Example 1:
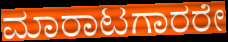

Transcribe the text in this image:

ಮಾರಾಟಗಾರರೇ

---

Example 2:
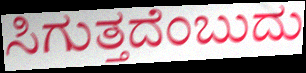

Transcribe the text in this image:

ಸಿಗುತ್ತದೆಂಬುದು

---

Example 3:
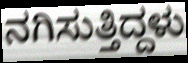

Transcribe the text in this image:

ನಗಿಸುತ್ತಿದ್ದಳು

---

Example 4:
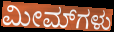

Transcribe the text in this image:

ಮೀಮ್‌ಗಳು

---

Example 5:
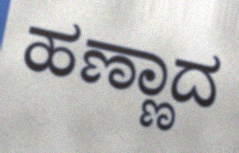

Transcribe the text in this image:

ಹಣ್ಣಾದ